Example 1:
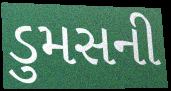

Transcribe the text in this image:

ડુમસની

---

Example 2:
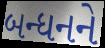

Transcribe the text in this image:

બન્ધનને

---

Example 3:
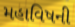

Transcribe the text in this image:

મહાવિષની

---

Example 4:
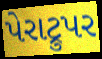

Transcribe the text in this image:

પેરાટ્રુપર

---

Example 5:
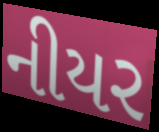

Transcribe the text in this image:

નીયર